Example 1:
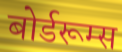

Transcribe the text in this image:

बोर्डरूम्स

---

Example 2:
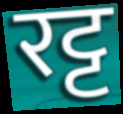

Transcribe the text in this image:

रट्ट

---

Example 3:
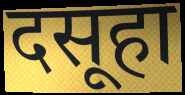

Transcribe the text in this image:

दसूहा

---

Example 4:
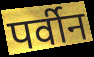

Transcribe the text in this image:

पर्वीन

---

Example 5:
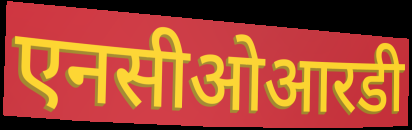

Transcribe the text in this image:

एनसीओआरडी